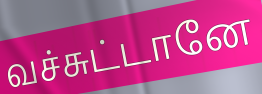
வச்சுட்டானே